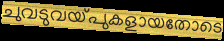
ചുവടുവയ്‌പുകളായതോടെ